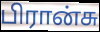
பிரான்சு